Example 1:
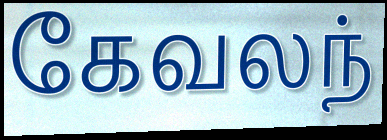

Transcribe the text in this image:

கேவலந்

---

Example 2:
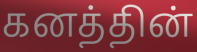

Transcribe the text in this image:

கனத்தின்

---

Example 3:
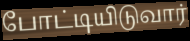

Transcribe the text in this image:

போட்டியிடுவார்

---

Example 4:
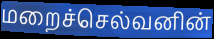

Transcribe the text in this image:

மறைச்செல்வனின்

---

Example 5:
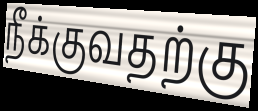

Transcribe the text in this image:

நீக்குவதற்கு